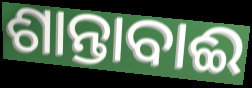
ଶାନ୍ତାବାଈ